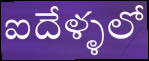
ఐదేళ్ళలో